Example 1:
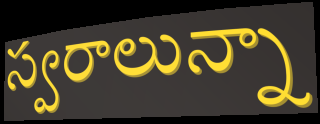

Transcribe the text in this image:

స్వరాలున్నా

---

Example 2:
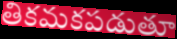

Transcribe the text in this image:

తికమకపడుతూ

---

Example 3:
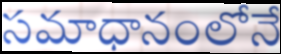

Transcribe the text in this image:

సమాధానంలోనే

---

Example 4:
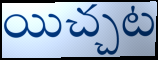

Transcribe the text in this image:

యిచ్చట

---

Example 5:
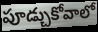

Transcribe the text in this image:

పూడ్చుకోవాలో